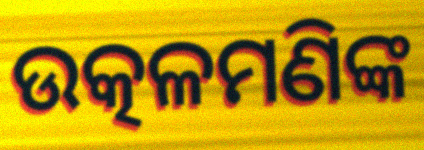
ଉତ୍କଳମଣିଙ୍କ